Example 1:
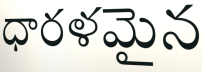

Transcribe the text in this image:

ధారళమైన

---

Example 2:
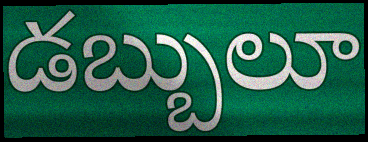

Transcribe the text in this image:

డబ్బులూ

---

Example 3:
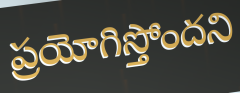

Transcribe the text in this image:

ప్రయోగిస్తోందని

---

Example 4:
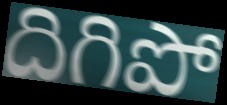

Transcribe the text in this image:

దిగిపో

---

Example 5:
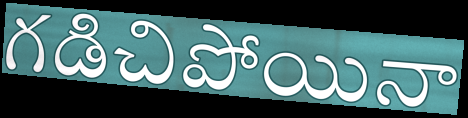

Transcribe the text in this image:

గడిచిపోయినా